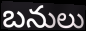
బనులు